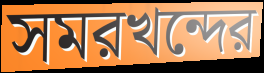
সমরখন্দের